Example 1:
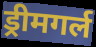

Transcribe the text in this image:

ड्रीमगर्ल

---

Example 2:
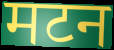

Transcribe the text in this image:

मटन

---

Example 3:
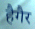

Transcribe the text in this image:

हैगैर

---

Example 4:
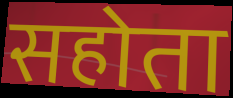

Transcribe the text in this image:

सहोता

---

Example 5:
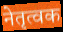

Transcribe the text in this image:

नेतृत्वक